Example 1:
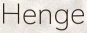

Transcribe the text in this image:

Henge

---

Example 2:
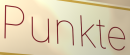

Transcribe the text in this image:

Punkte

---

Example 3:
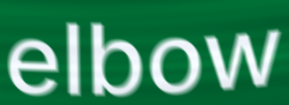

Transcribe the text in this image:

elbow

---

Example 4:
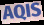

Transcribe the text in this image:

AQIS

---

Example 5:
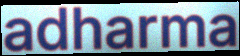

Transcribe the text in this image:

adharma